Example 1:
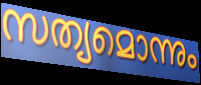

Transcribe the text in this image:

സത്യമൊന്നും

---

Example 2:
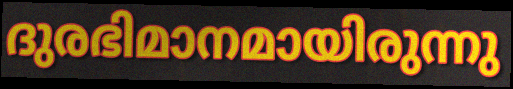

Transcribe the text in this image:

ദുരഭിമാനമായിരുന്നു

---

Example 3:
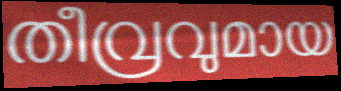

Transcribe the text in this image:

തീവ്രവുമായ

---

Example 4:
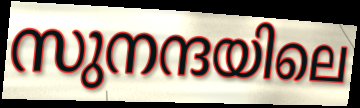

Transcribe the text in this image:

സുനന്ദയിലെ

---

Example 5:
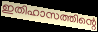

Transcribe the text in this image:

ഇതിഹാസത്തിന്റെ